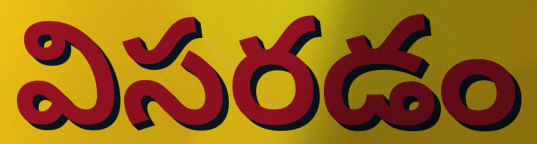
విసరడం